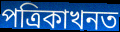
পত্ৰিকাখনত